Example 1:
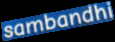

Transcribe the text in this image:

sambandhi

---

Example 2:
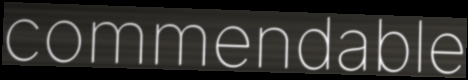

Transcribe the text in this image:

commendable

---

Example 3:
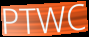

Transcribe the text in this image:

PTWC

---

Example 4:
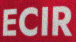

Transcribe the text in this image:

ECIR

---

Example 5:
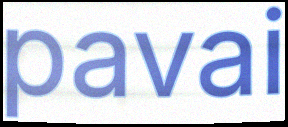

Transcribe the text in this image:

pavai